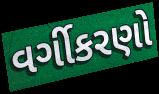
વર્ગીકરણો